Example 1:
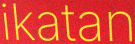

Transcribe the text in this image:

ikatan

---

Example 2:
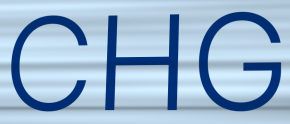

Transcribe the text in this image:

CHG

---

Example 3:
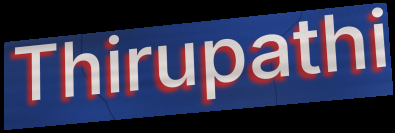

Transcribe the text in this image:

Thirupathi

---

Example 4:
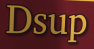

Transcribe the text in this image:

Dsup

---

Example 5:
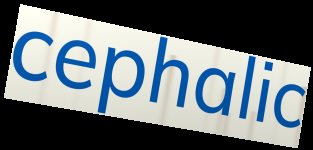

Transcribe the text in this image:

cephalic